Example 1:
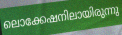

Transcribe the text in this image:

ലൊക്കേഷനിലായിരുന്നു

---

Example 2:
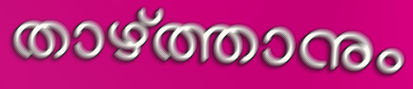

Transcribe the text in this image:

താഴ്ത്താനും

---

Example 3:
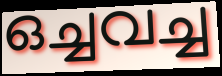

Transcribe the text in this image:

ഒച്ചവച്ച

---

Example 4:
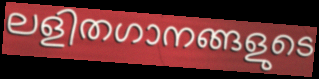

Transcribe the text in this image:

ലളിതഗാനങ്ങളുടെ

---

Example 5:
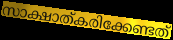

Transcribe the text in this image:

സാക്ഷാത്കരിക്കേണ്ടത്